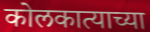
कोलकात्याच्या